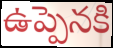
ఉప్పెనకి